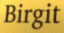
Birgit